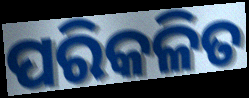
ପରିକଳିତ